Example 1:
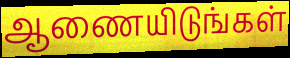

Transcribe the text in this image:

ஆணையிடுங்கள்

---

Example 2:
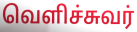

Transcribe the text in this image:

வெளிச்சுவர்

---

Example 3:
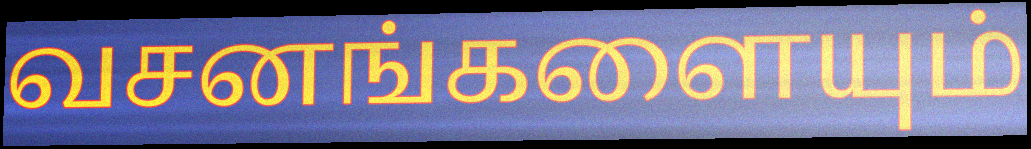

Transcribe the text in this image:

வசனங்களையும்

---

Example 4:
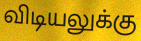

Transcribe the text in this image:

விடியலுக்கு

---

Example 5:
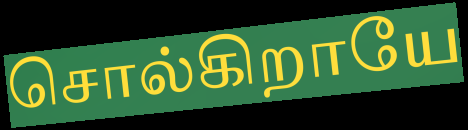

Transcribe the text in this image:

சொல்கிறாயே